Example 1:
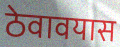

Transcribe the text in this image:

ठेवावयास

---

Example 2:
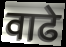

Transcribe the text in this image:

वाढे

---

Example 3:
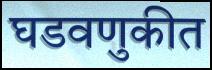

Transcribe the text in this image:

घडवणुकीत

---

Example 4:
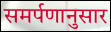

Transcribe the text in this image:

समर्पणानुसार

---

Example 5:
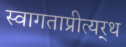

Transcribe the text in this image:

स्वागताप्रीत्यर्थ